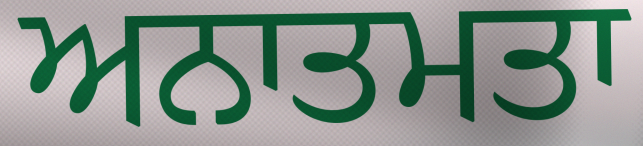
ਅਨਾਤਮਤਾ